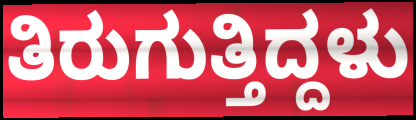
ತಿರುಗುತ್ತಿದ್ದಳು